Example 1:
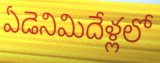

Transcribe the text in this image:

ఏడెనిమిదేళ్లలో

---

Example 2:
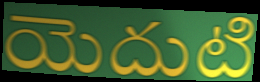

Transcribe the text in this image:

యెదుటి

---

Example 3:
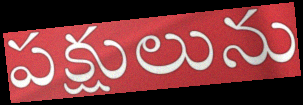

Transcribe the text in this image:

పక్షులును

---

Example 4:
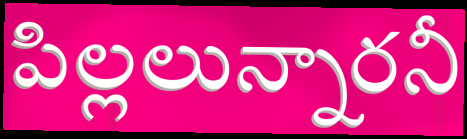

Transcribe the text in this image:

పిల్లలున్నారనీ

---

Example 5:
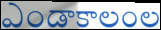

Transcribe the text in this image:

ఎండాకాలంల